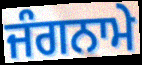
ਜੰਗਨਾਮੇ